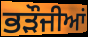
ਭੜੌਜੀਆਂ